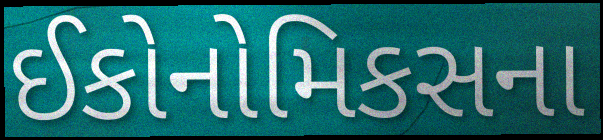
ઈકોનોમિકસના